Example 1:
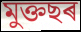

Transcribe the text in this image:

মুক্তছৰ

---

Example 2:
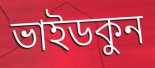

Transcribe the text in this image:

ভাইডকুন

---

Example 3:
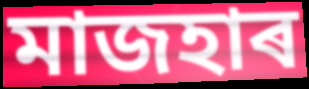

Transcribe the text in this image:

মাজহাৰ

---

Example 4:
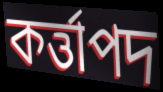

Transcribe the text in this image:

কৰ্ত্তাপদ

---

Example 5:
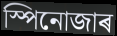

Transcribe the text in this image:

স্পিনোজাৰ